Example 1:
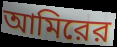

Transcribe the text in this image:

আমিরের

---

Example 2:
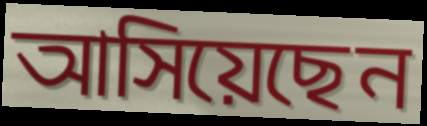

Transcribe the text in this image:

আসিয়েছেন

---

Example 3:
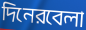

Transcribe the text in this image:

দিনেরবেলা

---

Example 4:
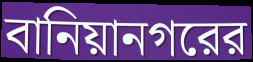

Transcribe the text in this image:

বানিয়ানগরের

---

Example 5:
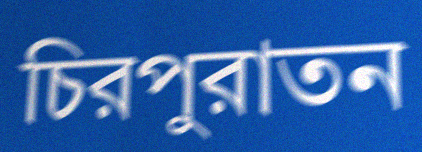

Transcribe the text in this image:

চিরপুরাতন